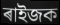
ৰাইজক